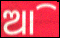
ଆି